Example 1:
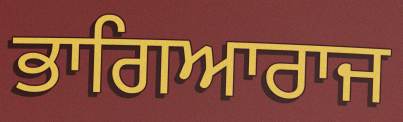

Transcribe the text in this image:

ਭਾਗਿਆਰਾਜ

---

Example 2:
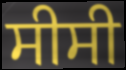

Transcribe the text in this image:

ਸੀਸੀ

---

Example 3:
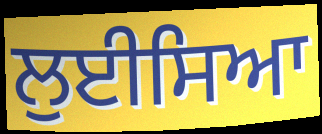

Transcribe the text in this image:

ਲੁਈਸਿਆ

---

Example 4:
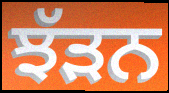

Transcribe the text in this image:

ਝੱੜਨ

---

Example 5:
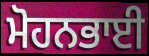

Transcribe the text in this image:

ਮੋਹਨਭਾਈ